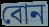
বোন